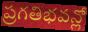
ప్రగతిభవన్లో